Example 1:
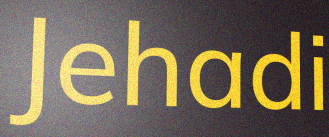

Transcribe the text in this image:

Jehadi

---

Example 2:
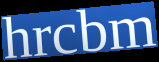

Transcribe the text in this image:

hrcbm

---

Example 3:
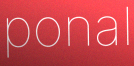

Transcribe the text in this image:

ponal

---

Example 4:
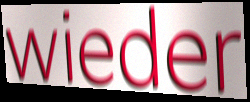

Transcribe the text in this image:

wieder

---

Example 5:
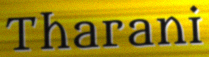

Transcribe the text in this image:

Tharani